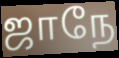
ஜாநே